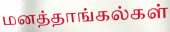
மனத்தாங்கல்கள்